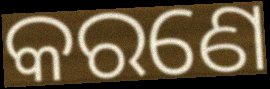
କରଣେ